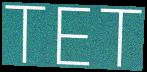
TET